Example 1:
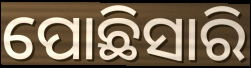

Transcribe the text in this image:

ପୋଛିସାରି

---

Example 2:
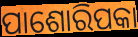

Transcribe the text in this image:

ପାଶୋରିପକା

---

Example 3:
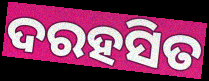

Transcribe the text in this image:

ଦରହସିତ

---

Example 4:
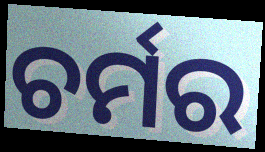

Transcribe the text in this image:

ଚର୍ମର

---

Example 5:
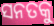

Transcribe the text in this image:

ସନତକୁ